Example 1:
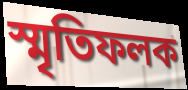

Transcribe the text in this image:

স্মৃতিফলক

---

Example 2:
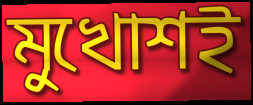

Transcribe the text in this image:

মুখোশই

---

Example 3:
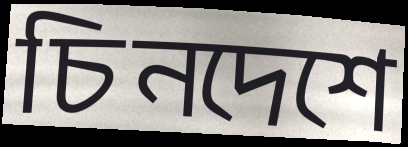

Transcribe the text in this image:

চিনদেশে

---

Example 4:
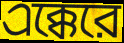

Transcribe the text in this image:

এক্কেরে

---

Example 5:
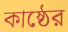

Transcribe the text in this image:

কাষ্ঠের